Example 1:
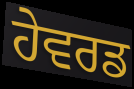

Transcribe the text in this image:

ਹੇਵਰਡ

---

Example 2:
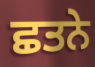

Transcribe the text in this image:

ਛਤਨੇ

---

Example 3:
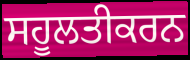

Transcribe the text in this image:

ਸਹੂਲਤੀਕਰਨ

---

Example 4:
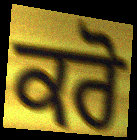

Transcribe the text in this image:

ਕਰੋ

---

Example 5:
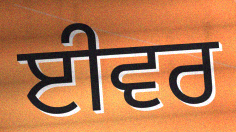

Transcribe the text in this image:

ਈਵਰ